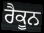
ਰੈਕੂਨ